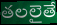
తలలైతే